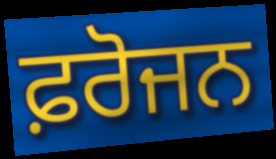
ਫ਼ਰੋਜਨ